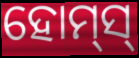
ହୋମ୍‌ସ୍